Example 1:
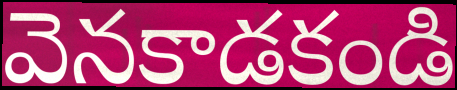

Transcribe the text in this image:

వెనకాడకండి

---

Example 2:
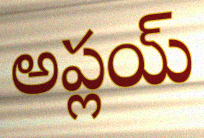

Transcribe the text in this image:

అప్లయ్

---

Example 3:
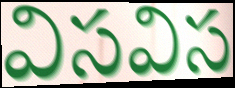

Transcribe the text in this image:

విసవిస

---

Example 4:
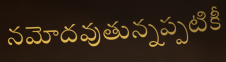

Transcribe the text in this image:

నమోదవుతున్నప్పటికీ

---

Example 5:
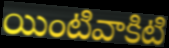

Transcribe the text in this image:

యింటివాకిటి